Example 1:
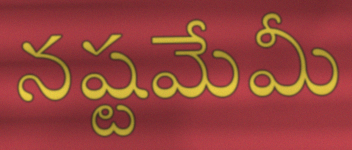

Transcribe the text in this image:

నష్టమేమీ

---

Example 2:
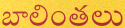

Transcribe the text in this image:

బాలింతలు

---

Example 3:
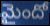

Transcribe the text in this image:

మైందో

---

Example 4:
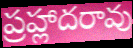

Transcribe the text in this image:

ప్రహ్లాదరావు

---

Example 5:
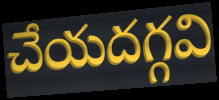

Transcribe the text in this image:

చేయదగ్గవి